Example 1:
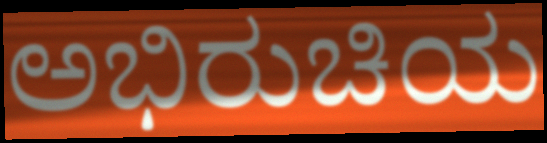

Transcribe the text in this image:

ಅಭಿರುಚಿಯ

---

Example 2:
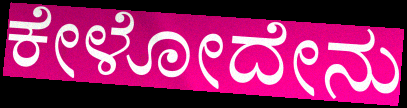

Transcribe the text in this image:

ಕೇಳೋದೇನು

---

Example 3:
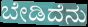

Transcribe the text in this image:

ಬೇಡಿದೆನು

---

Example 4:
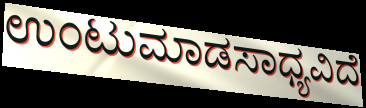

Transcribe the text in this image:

ಉಂಟುಮಾಡಸಾಧ್ಯವಿದೆ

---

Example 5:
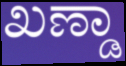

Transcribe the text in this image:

ಖಣ್ಡಾ